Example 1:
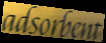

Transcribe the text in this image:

adsorbent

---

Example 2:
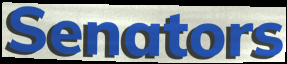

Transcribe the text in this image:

Senators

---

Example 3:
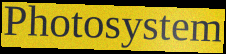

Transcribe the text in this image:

Photosystem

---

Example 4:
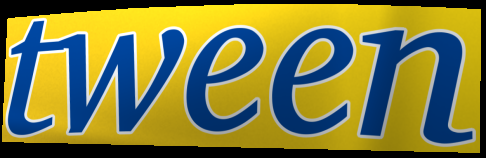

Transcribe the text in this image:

tween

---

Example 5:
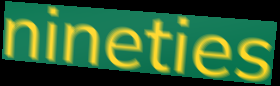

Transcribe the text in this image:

nineties